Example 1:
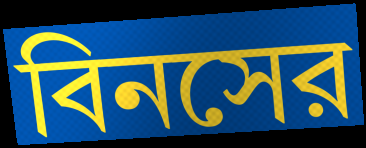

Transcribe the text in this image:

বিনসের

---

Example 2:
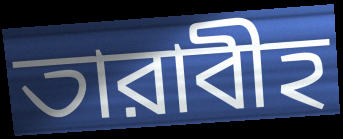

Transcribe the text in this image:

তারাবীহ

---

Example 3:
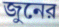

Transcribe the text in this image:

জুনের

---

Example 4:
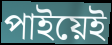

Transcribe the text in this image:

পাইয়েই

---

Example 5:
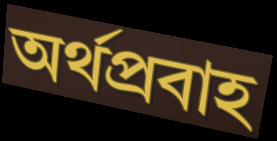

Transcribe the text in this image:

অর্থপ্রবাহ